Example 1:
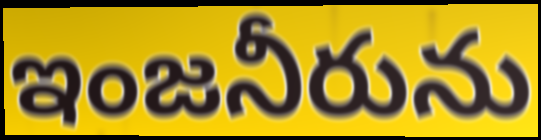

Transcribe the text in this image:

ఇంజనీరును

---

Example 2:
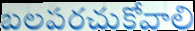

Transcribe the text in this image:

బలపరచుకోవాలి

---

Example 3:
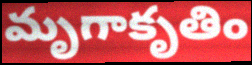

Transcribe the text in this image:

మృగాకృతిం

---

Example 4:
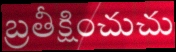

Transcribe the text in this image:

బ్రతీక్షించుచు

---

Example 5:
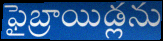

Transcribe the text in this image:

ఫైబ్రాయిడ్లను